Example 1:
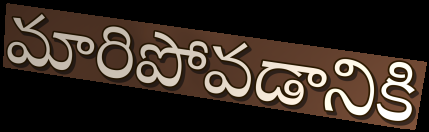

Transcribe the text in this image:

మారిపోవడానికి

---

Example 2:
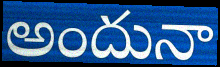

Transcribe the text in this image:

అందునా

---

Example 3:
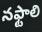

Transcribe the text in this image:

నఫ్టాలి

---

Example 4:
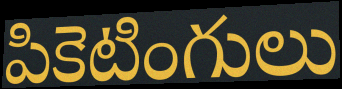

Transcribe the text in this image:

పికెటింగులు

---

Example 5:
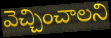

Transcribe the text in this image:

వెచ్చించాలని